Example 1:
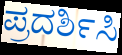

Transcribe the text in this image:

ಪ್ರದರ್ಶಿಸಿ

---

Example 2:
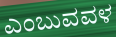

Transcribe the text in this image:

ಎಂಬುವವಳ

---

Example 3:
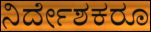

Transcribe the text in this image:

ನಿರ್ದೇಶಕರೂ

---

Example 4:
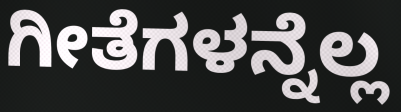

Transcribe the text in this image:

ಗೀತೆಗಳನ್ನೆಲ್ಲ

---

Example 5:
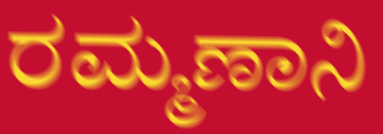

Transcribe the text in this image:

ರಮ್ಮಣಾನಿ